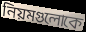
নিয়মগুলোকে